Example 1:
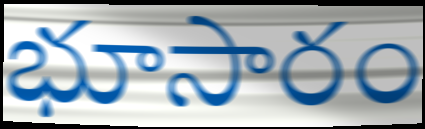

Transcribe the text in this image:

భూసారం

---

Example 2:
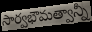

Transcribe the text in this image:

సార్వభౌమత్వాన్నీ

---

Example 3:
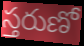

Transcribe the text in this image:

స్తరుణో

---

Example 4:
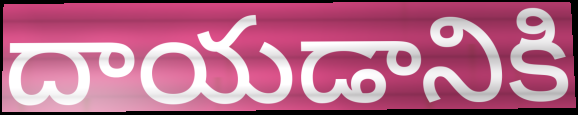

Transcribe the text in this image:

దాయడానికి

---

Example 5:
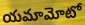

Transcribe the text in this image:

యమామోటో